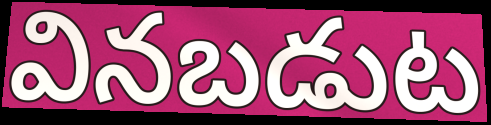
వినబడుట